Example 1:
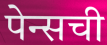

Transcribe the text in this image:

पेन्सची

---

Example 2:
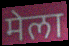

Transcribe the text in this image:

मेला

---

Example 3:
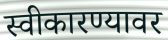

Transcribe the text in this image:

स्वीकारण्यावर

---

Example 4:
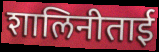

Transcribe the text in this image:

शालिनीताई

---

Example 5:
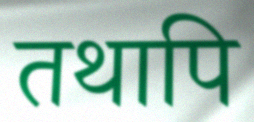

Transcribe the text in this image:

तथापि